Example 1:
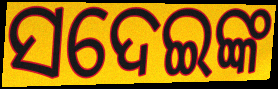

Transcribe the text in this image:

ସଦେଇଙ୍କ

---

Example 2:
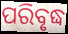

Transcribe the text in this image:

ପରିବୃଦ୍ଧ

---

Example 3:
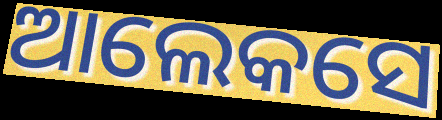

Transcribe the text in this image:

ଆଲେକସେ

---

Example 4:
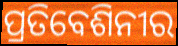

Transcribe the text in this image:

ପ୍ରତିବେଶିନୀର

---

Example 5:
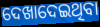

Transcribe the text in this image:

ଦେଖାଦେଇଥିବା